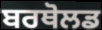
ਬਰਥੋਲਡ